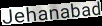
Jehanabad